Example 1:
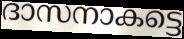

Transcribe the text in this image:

ദാസനാകട്ടെ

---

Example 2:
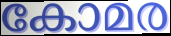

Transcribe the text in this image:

കോമര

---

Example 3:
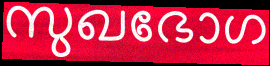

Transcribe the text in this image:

സുഖഭോഗ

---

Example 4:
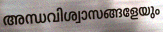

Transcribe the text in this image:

അന്ധവിശ്വാസങ്ങളേയും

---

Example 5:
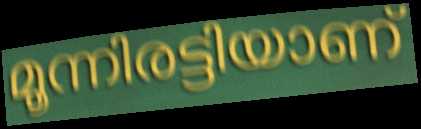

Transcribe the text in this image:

മൂന്നിരട്ടിയാണ്